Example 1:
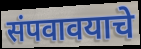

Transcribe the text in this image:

संपवावयाचे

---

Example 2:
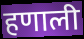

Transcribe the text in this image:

हणाली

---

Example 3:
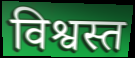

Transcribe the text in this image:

विश्वस्त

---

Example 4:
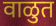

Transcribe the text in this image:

वाळुत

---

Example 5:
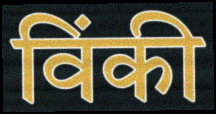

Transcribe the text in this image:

विंकी